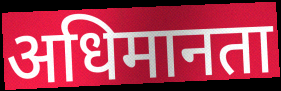
अधिमानता